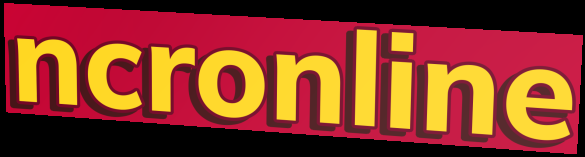
ncronline